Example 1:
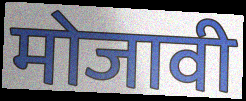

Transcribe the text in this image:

मोजावी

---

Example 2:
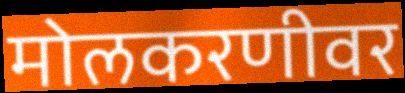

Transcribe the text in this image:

मोलकरणीवर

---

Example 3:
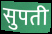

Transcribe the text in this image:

सुपती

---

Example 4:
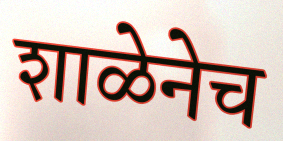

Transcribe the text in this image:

शाळेनेच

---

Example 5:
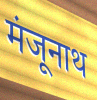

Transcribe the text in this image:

मंजूनाथ